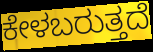
ಕೇಳಬರುತ್ತದೆ